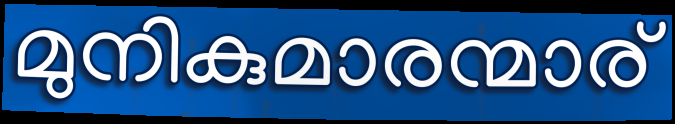
മുനികുമാരന്മാര്